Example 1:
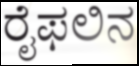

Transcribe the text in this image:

ರೈಫಲಿನ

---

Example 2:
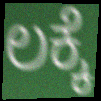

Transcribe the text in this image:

ಲಕ್ಕೆ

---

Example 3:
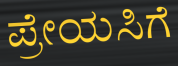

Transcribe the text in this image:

ಪ್ರೇಯಸಿಗೆ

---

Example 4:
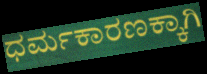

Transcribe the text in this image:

ಧರ್ಮಕಾರಣಕ್ಕಾಗಿ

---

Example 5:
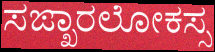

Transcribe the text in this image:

ಸಙ್ಖಾರಲೋಕಸ್ಸ